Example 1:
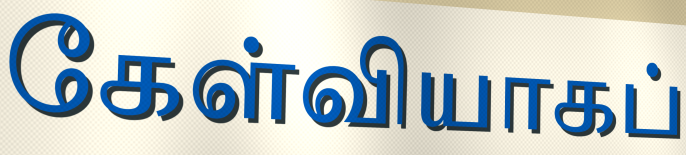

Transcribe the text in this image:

கேள்வியாகப்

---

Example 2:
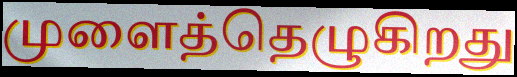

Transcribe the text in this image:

முளைத்தெழுகிறது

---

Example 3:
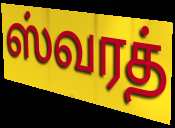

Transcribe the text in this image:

ஸ்வரத்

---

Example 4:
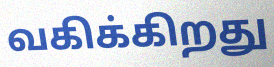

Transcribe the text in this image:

வகிக்கிறது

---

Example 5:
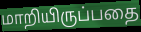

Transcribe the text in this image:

மாறியிருப்பதை